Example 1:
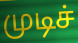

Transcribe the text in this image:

முடிச்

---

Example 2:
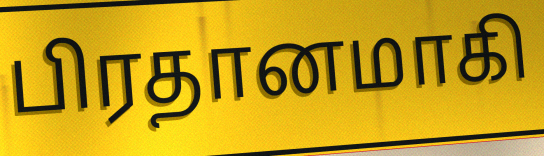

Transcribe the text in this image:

பிரதானமாகி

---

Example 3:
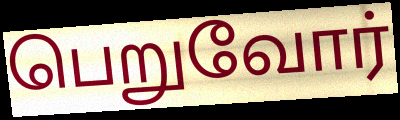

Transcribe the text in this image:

பெறுவோர்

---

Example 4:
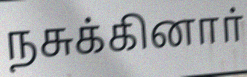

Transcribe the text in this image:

நசுக்கினார்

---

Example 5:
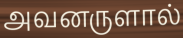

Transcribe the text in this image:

அவனருளால்